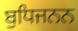
ਬੁਧਿਜਨਨ